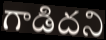
గాడిదని